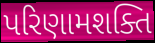
પરિણામશક્તિ